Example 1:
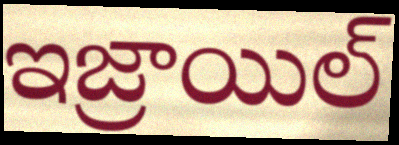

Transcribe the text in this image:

ఇజ్రాయిల్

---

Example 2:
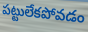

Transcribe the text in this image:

పట్టులేకపోవడం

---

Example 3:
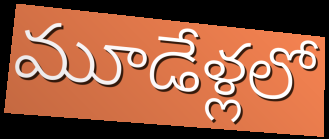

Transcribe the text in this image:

మూడేళ్లలో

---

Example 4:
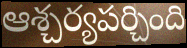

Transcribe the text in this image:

ఆశ్చర్యపర్చింది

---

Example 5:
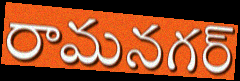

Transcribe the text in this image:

రామనగర్